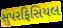
સુપરફિસિયલ